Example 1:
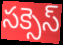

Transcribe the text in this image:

సక్సెస్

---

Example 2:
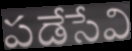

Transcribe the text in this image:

పడేసేవి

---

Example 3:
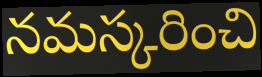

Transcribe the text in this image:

నమస్కరించి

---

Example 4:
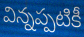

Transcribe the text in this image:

విన్నప్పటికీ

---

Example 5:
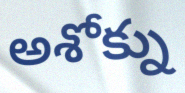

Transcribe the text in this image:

అశోక్ను